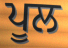
ਪੂਲ